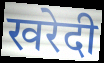
खरेदी